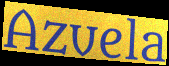
Azuela